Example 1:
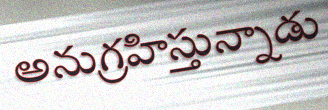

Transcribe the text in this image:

అనుగ్రహిస్తున్నాడు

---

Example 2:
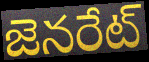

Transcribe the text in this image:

జెనరేట్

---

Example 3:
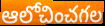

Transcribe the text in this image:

ఆలోచించగల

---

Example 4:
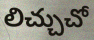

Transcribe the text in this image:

లిచ్చుచో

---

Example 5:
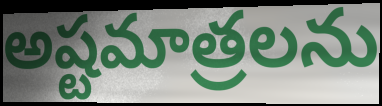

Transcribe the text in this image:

అష్టమాత్రలను